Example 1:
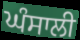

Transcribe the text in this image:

ਘੰਸਾਲੀ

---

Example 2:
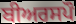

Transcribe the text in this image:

ਬੀਅਰਸਪੌ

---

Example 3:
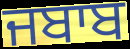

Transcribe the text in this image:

ਜਬਾਬ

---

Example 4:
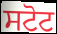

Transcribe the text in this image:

ਸਟੋਟ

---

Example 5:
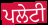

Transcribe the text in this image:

ਪਲੇਟੀ